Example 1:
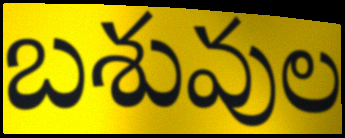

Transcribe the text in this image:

బశువుల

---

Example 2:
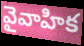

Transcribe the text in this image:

వైవాహిక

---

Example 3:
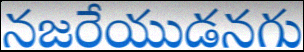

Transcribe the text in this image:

నజరేయుడనగు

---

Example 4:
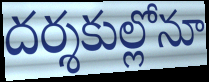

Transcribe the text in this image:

దర్శకుల్లోనూ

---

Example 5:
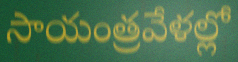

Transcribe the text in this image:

సాయంత్రవేళల్లో